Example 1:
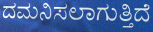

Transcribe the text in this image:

ದಮನಿಸಲಾಗುತ್ತಿದೆ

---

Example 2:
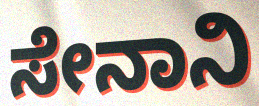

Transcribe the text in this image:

ಸೇನಾನಿ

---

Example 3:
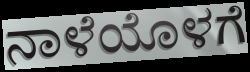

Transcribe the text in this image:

ನಾಳೆಯೊಳಗೆ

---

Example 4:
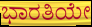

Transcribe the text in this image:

ಭಾರತಿಯೇ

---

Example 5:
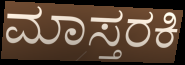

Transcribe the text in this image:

ಮಾಸ್ತರಕಿ